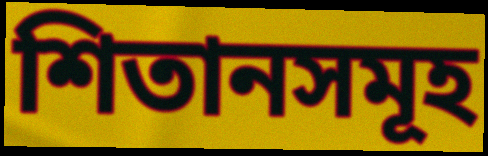
শিতানসমূহ